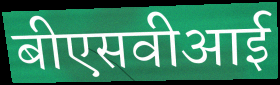
बीएसवीआई